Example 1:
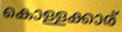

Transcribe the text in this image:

കൊള്ളക്കാര്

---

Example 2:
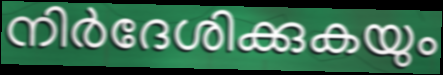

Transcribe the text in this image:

നിർദേശിക്കുകയും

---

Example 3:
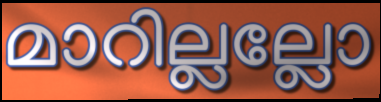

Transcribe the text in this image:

മാറില്ലല്ലോ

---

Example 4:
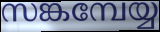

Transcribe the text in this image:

സങ്കമ്പേയ്യ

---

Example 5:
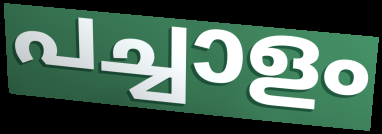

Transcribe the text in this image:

പച്ചാളം